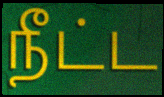
நீட்ட